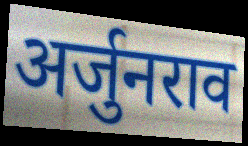
अर्जुनराव